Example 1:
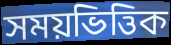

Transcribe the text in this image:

সময়ভিত্তিক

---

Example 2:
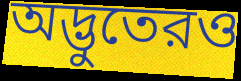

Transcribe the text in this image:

অদ্ভুতেরও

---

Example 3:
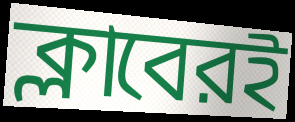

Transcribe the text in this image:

ক্লাবেরই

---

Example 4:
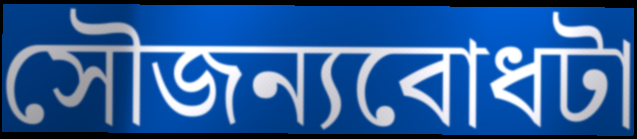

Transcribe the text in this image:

সৌজন্যবোধটা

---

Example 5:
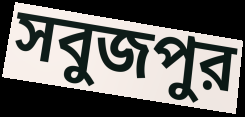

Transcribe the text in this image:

সবুজপুর